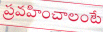
ప్రవహించాలంటే